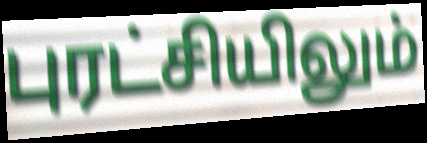
புரட்சியிலும்